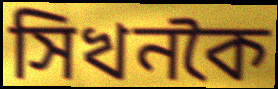
সিখনকৈ